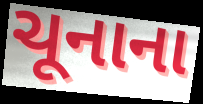
ચૂનાના